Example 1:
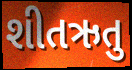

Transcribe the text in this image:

શીતઋતુ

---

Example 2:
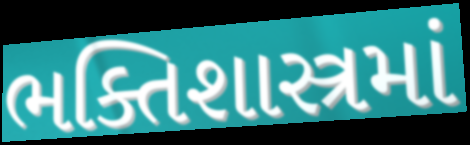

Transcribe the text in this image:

ભક્તિશાસ્ત્રમાં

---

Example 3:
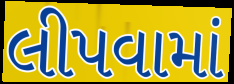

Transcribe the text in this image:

લીપવામાં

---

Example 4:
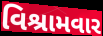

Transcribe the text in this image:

વિશ્રામવાર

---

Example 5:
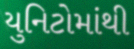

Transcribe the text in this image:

યુનિટોમાંથી